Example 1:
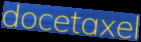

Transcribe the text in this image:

docetaxel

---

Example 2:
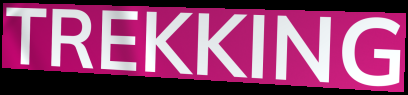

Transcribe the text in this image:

TREKKING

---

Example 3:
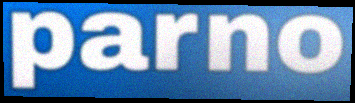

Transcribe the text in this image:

parno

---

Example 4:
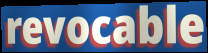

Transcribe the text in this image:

revocable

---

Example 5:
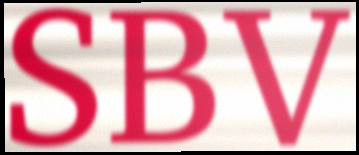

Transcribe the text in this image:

SBV